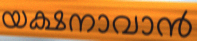
യക്ഷനാവാൻ